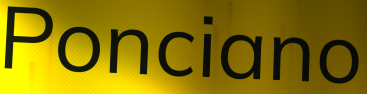
Ponciano